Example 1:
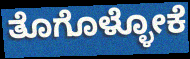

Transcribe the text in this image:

ತೊಗೊಳ್ಳೋಕೆ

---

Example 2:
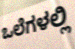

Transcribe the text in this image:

ಒಲೆಗಳಲ್ಲಿ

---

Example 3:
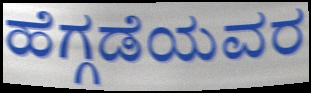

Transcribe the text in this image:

ಹೆಗ್ಗಡೆಯವರ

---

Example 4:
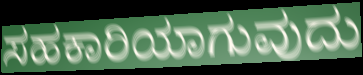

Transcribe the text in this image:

ಸಹಕಾರಿಯಾಗುವುದು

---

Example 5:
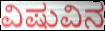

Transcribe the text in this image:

ವಿಷುವಿನ